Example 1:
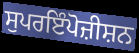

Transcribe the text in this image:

ਸੁਪਰਇੰਪੋਜ਼ੀਸ਼ਨ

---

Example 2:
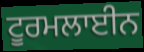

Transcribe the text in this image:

ਟੂਰਮਲਾਈਨ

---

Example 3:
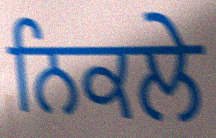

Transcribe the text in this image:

ਨਿਕਲੇ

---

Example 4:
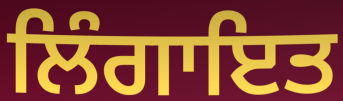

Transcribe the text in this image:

ਲਿੰਗਾਇਤ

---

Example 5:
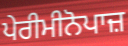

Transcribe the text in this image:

ਪੇਰੀਮੀਨੋਪਾਜ਼